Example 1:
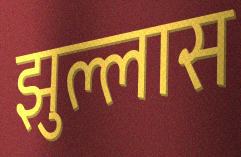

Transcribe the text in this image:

झुल्लास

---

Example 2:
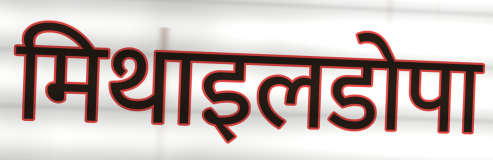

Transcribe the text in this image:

मिथाइलडोपा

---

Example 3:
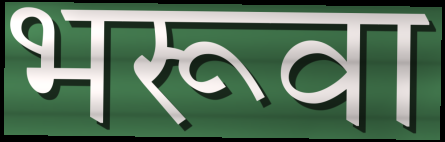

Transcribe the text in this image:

भरूवा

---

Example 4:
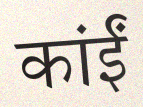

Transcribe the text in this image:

कांईं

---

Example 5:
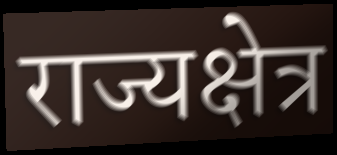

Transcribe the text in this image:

राज्यक्षेत्र